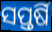
ସପ୍ତର୍ଷି